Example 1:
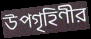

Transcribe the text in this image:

উপগৃহিণীর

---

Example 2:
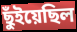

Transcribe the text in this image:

ছুঁইয়েছিল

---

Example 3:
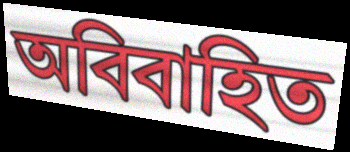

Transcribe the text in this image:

অবিবাহিত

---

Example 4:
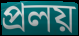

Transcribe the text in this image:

প্রলয়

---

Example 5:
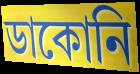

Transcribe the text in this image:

ডাকোনি